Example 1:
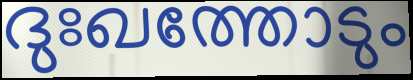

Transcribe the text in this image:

ദുഃഖത്തോടും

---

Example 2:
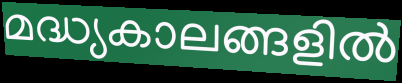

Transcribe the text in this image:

മദ്ധ്യകാലങ്ങളിൽ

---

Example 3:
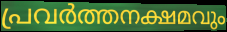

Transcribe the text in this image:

പ്രവർത്തനക്ഷമവും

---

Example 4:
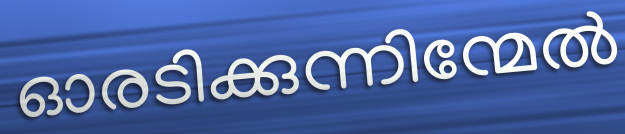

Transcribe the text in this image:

ഓരടിക്കുന്നിന്മേൽ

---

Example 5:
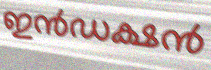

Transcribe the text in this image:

ഇൻഡക്ഷൻ